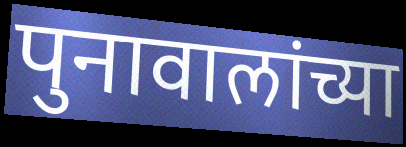
पुनावालांच्या